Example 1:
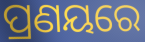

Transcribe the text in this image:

ପ୍ରଣୟରେ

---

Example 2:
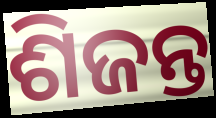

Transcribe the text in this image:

ଶିଜନ୍ତ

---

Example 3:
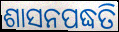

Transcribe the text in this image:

ଶାସନପଦ୍ଧତି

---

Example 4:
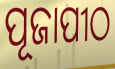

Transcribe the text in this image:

ପୂଜାପୀଠ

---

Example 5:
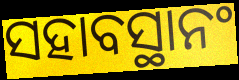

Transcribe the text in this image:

ସହାବସ୍ଥାନଂ